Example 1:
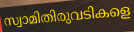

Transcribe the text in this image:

സ്വാമിതിരുവടികളെ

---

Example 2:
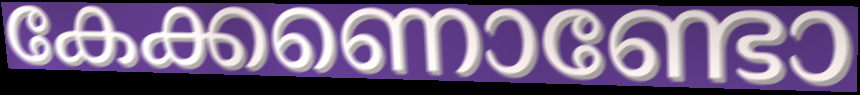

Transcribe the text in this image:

കേക്കണൊണ്ടോ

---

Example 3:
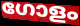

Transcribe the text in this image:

ഗോളം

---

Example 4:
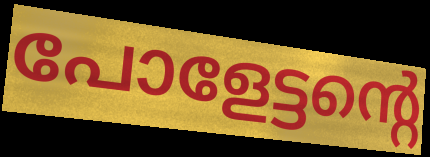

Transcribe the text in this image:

പോളേട്ടന്റെ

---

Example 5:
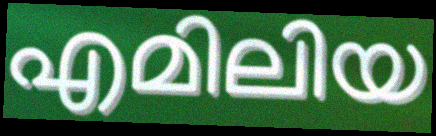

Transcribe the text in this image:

എമിലിയ